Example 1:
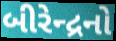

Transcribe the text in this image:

બીરેન્દ્રનો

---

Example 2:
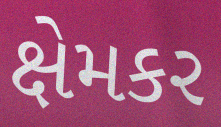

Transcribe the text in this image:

ક્ષેમકર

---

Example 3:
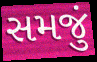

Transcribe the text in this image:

સમજું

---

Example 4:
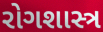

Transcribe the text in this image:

રોગશાસ્ત્ર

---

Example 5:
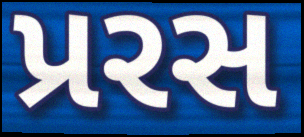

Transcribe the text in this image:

પ્રરસ